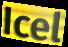
Icel